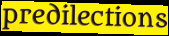
predilections